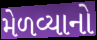
મેળવ્યાનો